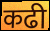
कढी